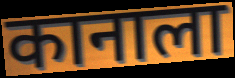
कानाला